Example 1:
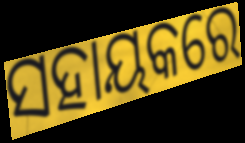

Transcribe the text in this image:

ସହାୟକରେ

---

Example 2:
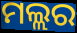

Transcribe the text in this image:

ମଲ୍ଲର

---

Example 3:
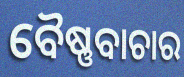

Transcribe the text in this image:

ବୈଷ୍ଣବାଚାର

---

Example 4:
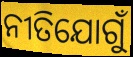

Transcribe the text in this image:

ନୀତିଯୋଗୁଁ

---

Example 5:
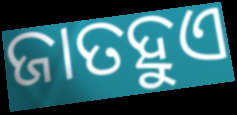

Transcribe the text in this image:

ଜାତହୁଏ